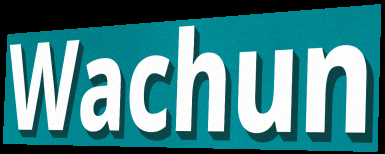
Wachun